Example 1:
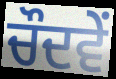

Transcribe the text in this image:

ਚੌਦਵੇਂ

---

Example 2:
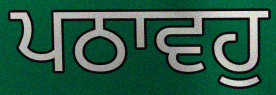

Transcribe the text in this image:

ਪਠਾਵਹੁ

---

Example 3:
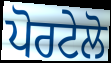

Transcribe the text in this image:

ਪੋਰਟੇਲੋ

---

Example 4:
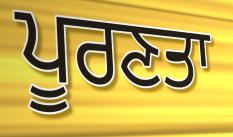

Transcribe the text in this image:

ਪੂਰਣਤਾ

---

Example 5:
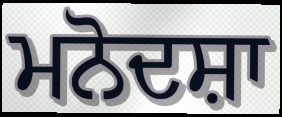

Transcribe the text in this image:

ਮਨੋਦਸ਼ਾ